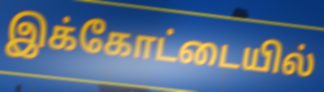
இக்கோட்டையில்